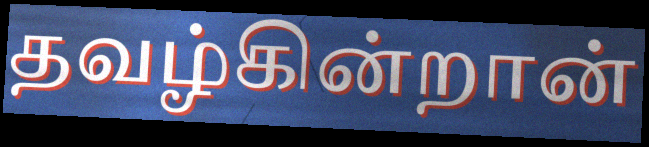
தவழ்கின்றான்